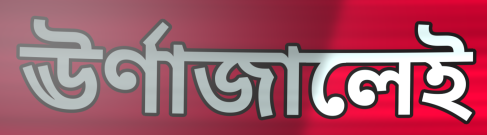
ঊর্ণাজালেই